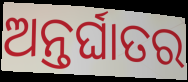
ଅନ୍ତର୍ଘାତର